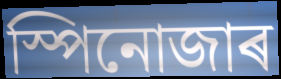
স্পিনোজাৰ